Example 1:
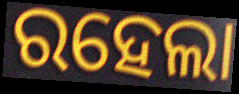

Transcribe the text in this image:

ରହେଲା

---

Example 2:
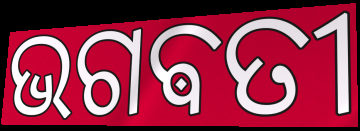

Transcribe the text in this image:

ଭଗଵତୀ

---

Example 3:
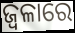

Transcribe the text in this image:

ଜ୍ୱଳାରେ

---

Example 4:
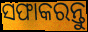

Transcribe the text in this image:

ସଫାକରନ୍ତୁ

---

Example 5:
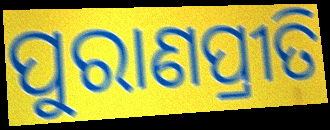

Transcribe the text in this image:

ପୁରାଣପ୍ରୀତି